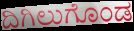
ದಿಗಿಲುಗೊಂಡ